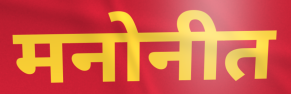
मनोनीत